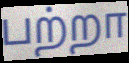
பற்றா